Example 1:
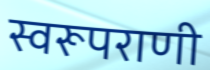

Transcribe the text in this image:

स्वरूपराणी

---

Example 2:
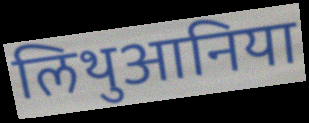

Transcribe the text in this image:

लिथुआनिया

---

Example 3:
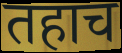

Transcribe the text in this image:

तहाच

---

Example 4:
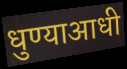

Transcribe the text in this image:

धुण्याआधी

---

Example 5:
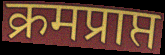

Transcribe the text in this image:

क्रमप्राप्त